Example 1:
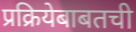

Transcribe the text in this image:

प्रक्रियेबाबतची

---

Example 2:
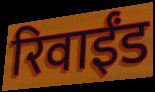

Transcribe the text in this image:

रिवाईंड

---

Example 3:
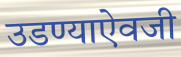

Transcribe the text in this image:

उडण्याऐवजी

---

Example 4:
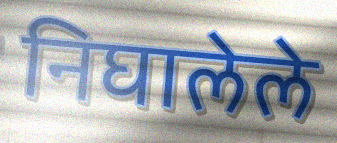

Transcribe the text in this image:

निघालेले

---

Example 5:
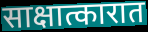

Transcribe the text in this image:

साक्षात्कारात